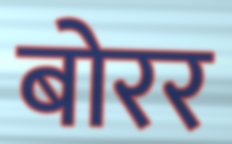
बोरर